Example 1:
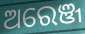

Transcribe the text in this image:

ଅରେଞ୍ଜ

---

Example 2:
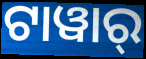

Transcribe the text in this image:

ଟାୱାର୍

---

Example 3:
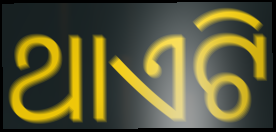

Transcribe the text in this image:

ଥାଏଟି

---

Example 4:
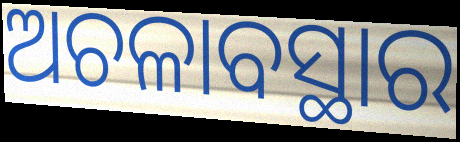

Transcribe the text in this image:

ଅଚଳାବସ୍ଥାର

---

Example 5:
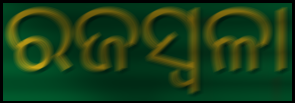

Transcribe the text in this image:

ରଜସ୍ବଳା